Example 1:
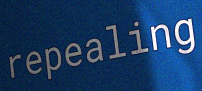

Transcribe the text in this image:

repealing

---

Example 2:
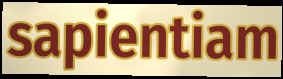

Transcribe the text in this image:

sapientiam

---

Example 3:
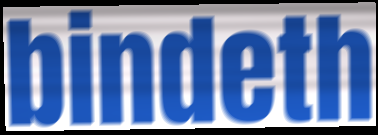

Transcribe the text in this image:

bindeth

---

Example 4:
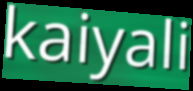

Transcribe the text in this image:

kaiyali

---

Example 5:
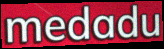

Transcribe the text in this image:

medadu